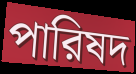
পারিষদ